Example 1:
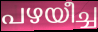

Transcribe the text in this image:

പഴയീച്ച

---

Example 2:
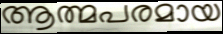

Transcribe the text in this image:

ആത്മപരമായ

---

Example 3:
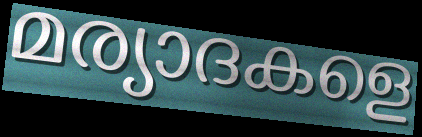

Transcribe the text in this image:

മര്യാദകളെ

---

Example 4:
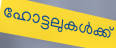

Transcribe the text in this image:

ഹോട്ടലുകൾക്ക്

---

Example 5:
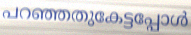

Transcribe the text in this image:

പറഞ്ഞതുകേട്ടപ്പോൾ